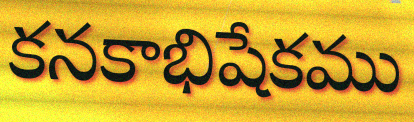
కనకాభిషేకము